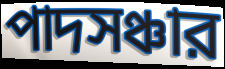
পাদসঞ্চার